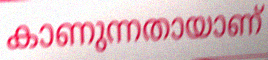
കാണുന്നതായാണ്